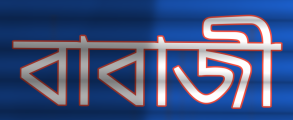
বাবাজী